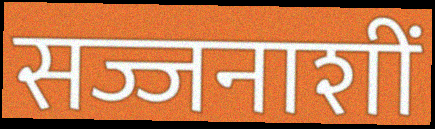
सज्जनाशीं